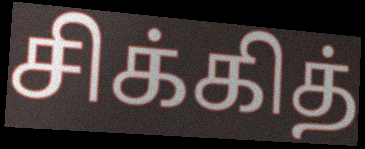
சிக்கித்